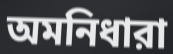
অমনিধারা